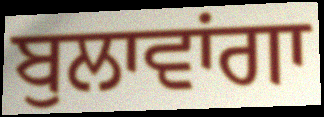
ਬੁਲਾਵਾਂਗਾ